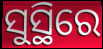
ସୁସ୍ଥିରେ